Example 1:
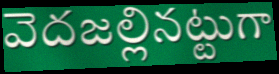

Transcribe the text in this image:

వెదజల్లినట్టుగా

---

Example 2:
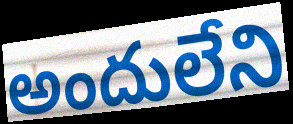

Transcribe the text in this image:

అందులేని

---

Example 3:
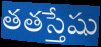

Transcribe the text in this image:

తతస్తేషు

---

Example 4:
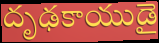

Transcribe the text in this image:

దృఢకాయుడై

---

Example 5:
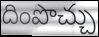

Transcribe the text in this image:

దింపొచ్చు